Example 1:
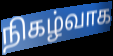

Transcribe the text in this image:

நிகழ்வாக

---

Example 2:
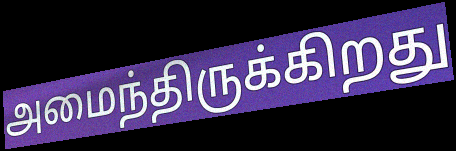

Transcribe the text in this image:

அமைந்திருக்கிறது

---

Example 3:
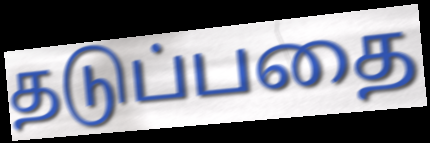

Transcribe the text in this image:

தடுப்பதை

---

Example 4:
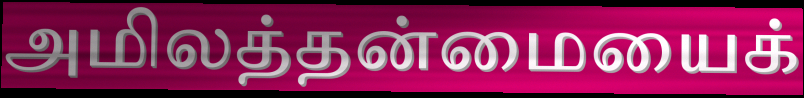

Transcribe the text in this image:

அமிலத்தன்மையைக்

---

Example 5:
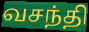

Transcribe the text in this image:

வசந்தி